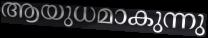
ആയുധമാകുന്നു